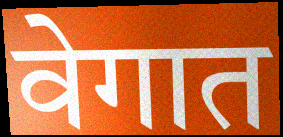
वेगात